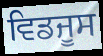
ਵਿਡਜੂਸ